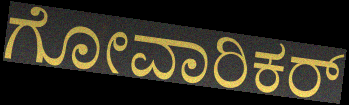
ಗೋವಾರಿಕರ್